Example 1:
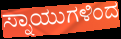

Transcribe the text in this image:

ಸ್ನಾಯುಗಳಿಂದ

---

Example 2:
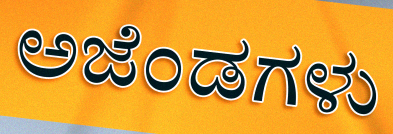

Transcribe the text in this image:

ಅಜೆಂಡಗಳು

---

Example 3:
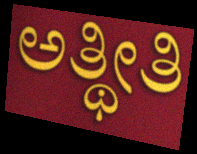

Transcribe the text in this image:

ಅತ್ಥೀತಿ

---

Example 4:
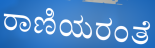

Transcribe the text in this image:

ರಾಣಿಯರಂತೆ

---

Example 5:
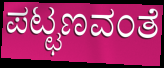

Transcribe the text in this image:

ಪಟ್ಟಣವಂತೆ